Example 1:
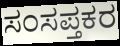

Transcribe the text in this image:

ಸಂಸಪ್ತಕರ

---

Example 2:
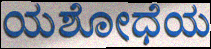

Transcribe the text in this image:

ಯಶೋಧೆಯ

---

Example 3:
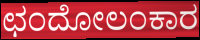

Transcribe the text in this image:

ಛಂದೋಲಂಕಾರ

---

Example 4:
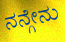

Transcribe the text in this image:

ನನ್ಗೇನು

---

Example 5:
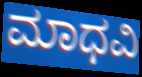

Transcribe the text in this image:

ಮಾಧವಿ